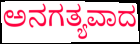
ಅನಗತ್ಯವಾದ